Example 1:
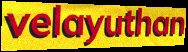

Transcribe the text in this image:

velayuthan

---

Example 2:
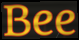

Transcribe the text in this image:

Bee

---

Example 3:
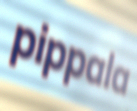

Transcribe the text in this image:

pippala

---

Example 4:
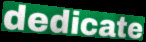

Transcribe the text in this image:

dedicate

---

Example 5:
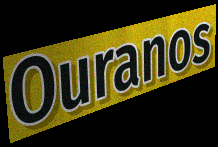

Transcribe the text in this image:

Ouranos